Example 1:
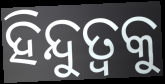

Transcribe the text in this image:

ହିନ୍ଦୁତ୍ୱକୁ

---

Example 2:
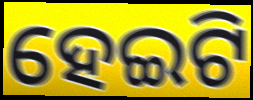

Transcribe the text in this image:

ହେଇଟି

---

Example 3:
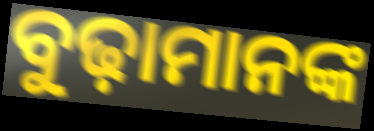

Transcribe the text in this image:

ବୁଢ଼ାମାନଙ୍କ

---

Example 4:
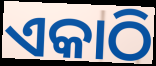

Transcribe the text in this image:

ଏକାଠି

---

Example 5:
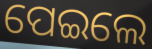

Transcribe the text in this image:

ପେଇଲେ